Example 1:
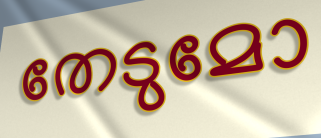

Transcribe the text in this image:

തേടുമോ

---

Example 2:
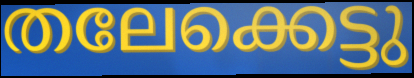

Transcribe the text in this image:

തലേക്കെട്ടു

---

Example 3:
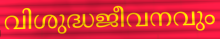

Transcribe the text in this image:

വിശുദ്ധജീവനവും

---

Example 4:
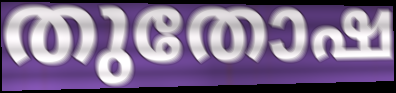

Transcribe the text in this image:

തുതോഷ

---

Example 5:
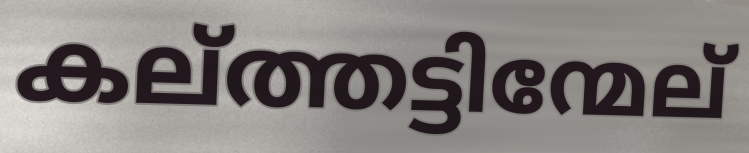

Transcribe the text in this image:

കല്ത്തട്ടിന്മേല്